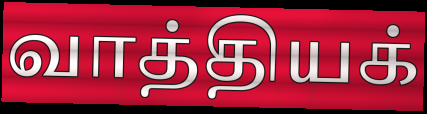
வாத்தியக்